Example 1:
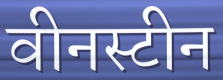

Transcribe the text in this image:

वीनस्टीन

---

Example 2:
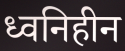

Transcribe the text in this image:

ध्वनिहीन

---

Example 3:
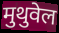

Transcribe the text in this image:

मुथुवेल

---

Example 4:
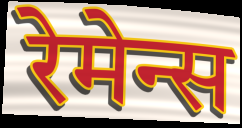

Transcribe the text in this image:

रेमेन्स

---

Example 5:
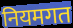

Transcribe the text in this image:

नियमगत